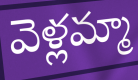
వెళ్లమ్మా